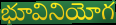
భూవినియోగ